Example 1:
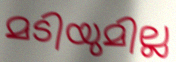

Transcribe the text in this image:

മടിയുമില്ല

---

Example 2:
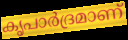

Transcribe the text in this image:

കൃപാർദ്രമാണ്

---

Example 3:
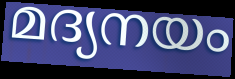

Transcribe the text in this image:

മദ്യനയം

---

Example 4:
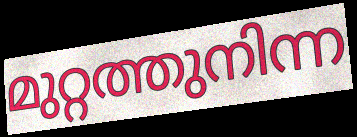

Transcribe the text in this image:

മുറ്റത്തുനിന്ന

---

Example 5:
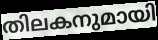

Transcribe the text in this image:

തിലകനുമായി